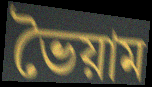
ভৈয়াম